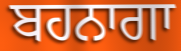
ਬਹਨਾਗਾ